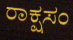
ರಾಕ್ಷಸಂ